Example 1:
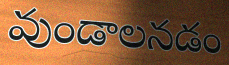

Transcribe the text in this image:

వుండాలనడం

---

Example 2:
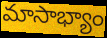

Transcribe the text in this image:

మాసాభ్యాం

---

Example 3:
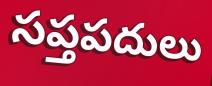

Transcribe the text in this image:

సప్తపదులు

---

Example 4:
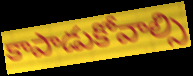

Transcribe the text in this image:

కాపాడుకోవాల్సి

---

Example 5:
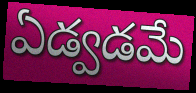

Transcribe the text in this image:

ఏడ్వడమే